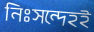
নিঃসন্দেহই